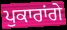
ਪੁਕਾਰਾਂਗੇ